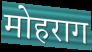
मोहराग